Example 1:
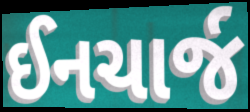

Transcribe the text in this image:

ઈનચાર્જ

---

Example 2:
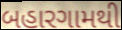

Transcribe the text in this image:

બહારગામથી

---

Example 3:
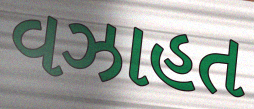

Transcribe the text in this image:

વઝાહત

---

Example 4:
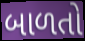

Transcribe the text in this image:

બાળતો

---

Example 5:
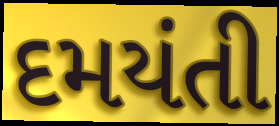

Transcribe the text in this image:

દમયંતી